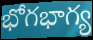
భోగభాగ్య